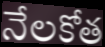
నేలకోత